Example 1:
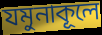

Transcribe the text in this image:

যমুনাকূলে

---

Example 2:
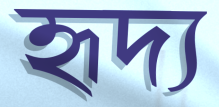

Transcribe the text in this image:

হৃদ্য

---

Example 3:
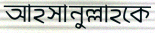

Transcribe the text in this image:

আহসানুল্লাহকে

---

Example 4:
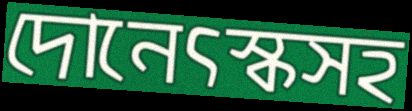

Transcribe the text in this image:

দোনেৎস্কসহ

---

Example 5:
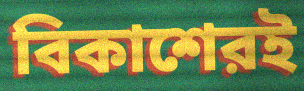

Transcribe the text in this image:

বিকাশেরই